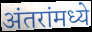
अंतरांमध्ये